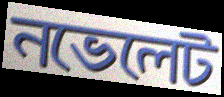
নভেলেট